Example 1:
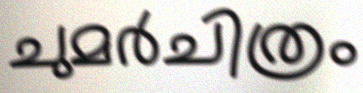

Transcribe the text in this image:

ചുമർചിത്രം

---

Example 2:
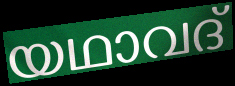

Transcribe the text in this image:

യഥാവദ്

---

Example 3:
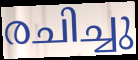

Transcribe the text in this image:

രചിച്ചു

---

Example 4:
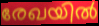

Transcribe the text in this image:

രേഖയിൽ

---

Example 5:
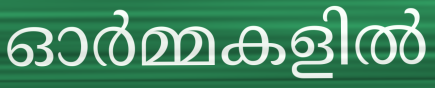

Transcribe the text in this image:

ഓർമ്മകളിൽ